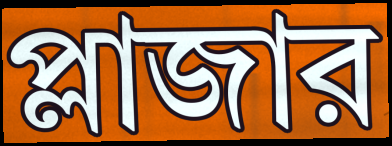
প্লাজার